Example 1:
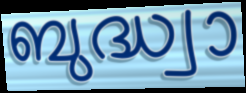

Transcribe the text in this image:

ബുദ്ധ്വാ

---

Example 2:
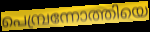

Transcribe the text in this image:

പെമ്പ്രന്നോത്തിയെ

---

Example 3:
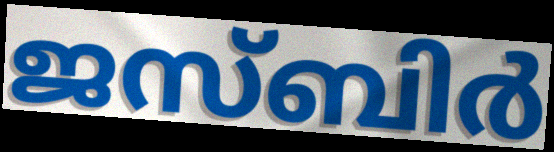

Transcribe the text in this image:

ജസ്ബിർ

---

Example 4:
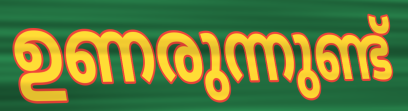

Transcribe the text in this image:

ഉണരുന്നുണ്ട്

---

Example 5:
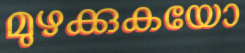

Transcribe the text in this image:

മുഴക്കുകയോ